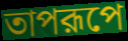
তাপরূপে